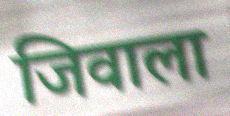
जिवाला